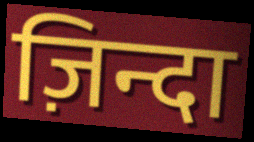
ज़िन्दा